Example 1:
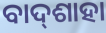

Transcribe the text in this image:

ବାଦ୍‌ଶାହା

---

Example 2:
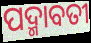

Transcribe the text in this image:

ପଦ୍ମାବତୀ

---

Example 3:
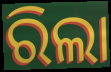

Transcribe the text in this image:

ରିଲା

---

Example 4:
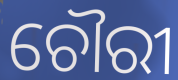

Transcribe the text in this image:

ଚୌରୀ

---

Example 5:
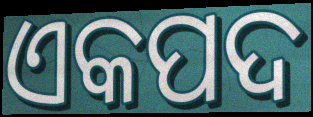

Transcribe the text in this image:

ଏକପଦ